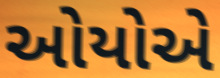
ઓયોએ